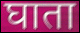
घाता